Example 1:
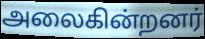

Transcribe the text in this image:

அலைகின்றனர்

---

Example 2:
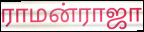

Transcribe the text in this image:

ராமன்ராஜா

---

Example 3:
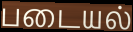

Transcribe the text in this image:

படையல்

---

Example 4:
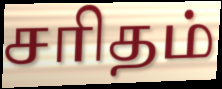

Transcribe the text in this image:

சரிதம்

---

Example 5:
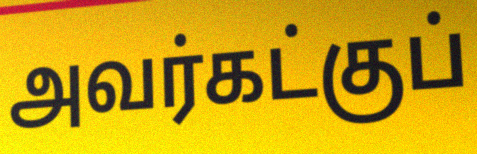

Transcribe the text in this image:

அவர்கட்குப்